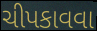
ચીપકાવવા